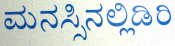
ಮನಸ್ಸಿನಲ್ಲಿಡಿರಿ